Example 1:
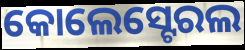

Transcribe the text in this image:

କୋଲେସ୍ଟେରଲ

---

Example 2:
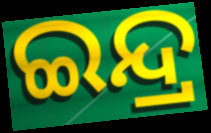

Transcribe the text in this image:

ଇନ୍ଦ୍ର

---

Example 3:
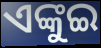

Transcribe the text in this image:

ଏଙ୍କୁଇ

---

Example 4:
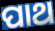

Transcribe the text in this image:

ପାଥ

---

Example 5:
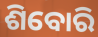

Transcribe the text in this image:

ଶିବୋରି